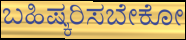
ಬಹಿಷ್ಕರಿಸಬೇಕೋ